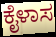
ಕೈಳಾಸ